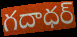
గదాధర్